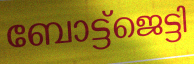
ബോട്ട്ജെട്ടി